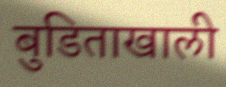
बुडिताखाली